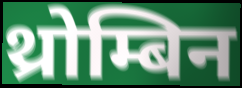
थ्रोम्बिन